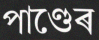
পাণ্ডেৰ